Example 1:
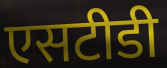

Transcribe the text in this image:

एसटीडी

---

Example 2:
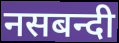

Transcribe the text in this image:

नसबन्दी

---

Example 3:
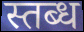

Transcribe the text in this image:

स्तब्ध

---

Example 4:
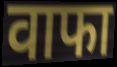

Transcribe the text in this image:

वाफा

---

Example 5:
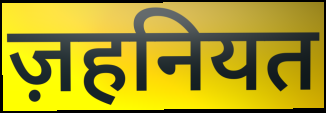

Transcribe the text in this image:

ज़हनियत